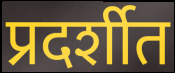
प्रदर्शीत